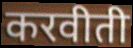
करवीती